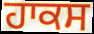
ਹਾਕਸ